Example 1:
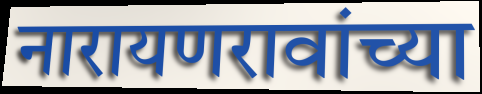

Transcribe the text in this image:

नारायणरावांच्या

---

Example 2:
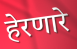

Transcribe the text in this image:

हेरणारे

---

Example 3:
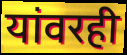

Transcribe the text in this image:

यांवरही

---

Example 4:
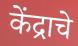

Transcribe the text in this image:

केंद्राचे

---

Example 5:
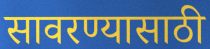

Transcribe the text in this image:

सावरण्यासाठी